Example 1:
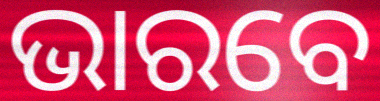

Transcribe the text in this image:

ଭାରବେ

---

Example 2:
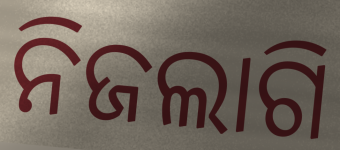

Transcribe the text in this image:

ନିଜଲାଗି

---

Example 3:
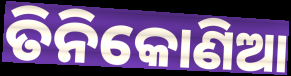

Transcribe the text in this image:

ତିନିକୋଣିଆ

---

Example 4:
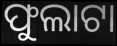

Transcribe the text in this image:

ଫୁଲାଟା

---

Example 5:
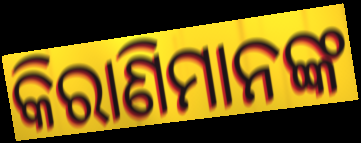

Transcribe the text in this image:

କିରାଣିମାନଙ୍କ